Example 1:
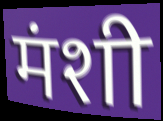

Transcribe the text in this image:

मंशी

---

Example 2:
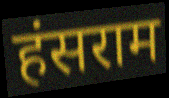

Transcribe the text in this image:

हंसराम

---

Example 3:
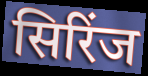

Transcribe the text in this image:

सिरिंज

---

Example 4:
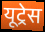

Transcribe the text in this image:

यूट्रेस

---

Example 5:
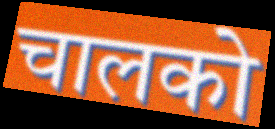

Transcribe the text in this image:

चालको